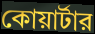
কোয়ার্টার